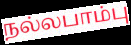
நல்லபாம்பு